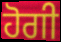
ਹੋਗੀ